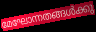
മേഘോന്നതങ്ങൾക്കു